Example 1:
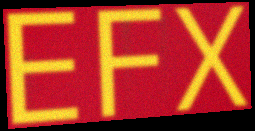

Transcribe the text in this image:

EFX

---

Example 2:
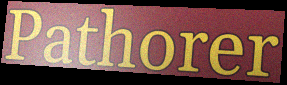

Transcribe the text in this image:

Pathorer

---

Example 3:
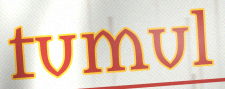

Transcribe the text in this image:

tumul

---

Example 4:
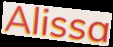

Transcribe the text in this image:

Alissa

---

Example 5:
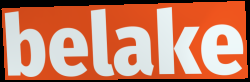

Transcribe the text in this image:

belake